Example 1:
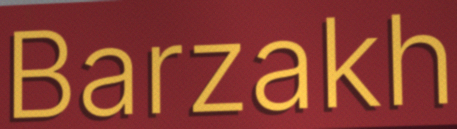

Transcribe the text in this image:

Barzakh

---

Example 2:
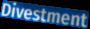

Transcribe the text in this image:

Divestment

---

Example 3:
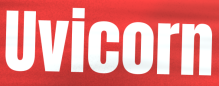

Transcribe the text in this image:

Uvicorn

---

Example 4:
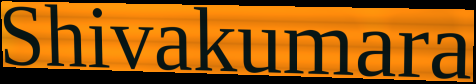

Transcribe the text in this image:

Shivakumara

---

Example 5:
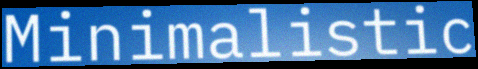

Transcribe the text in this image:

Minimalistic